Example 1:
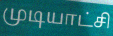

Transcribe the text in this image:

முடியாட்சி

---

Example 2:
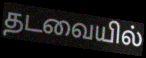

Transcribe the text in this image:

தடவையில்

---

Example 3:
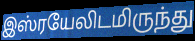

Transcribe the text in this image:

இஸ்ரயேலிடமிருந்து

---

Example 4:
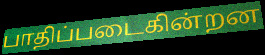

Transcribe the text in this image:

பாதிப்படைகின்றன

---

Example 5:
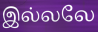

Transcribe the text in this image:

இல்லலே